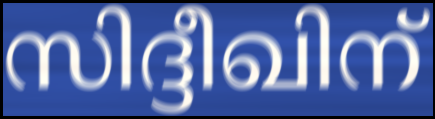
സിദ്ദീഖിന്